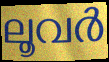
ലൂവർ